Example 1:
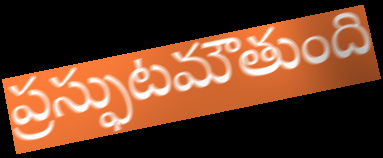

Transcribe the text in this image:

ప్రస్ఫుటమౌతుంది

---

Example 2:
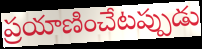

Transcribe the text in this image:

ప్రయాణించేటప్పుడు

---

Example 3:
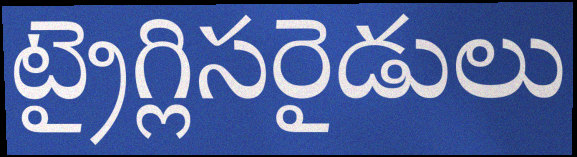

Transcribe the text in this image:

ట్రైగ్లిసరైడులు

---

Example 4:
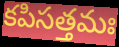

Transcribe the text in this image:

కపిసత్తమః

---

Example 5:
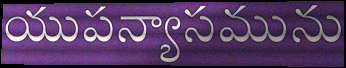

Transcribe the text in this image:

యుపన్యాసమును